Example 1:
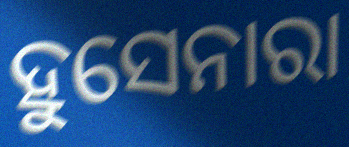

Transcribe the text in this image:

ହୁସେନାରା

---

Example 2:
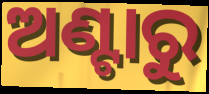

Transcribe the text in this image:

ଅଣ୍ଟାରୁ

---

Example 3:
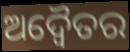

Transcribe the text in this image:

ଅଦ୍ଵୈତର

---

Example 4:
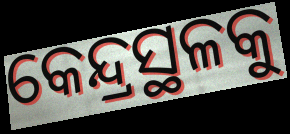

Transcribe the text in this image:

କେନ୍ଦ୍ରସ୍ଥଳକୁ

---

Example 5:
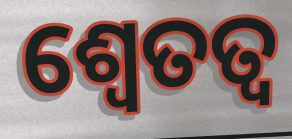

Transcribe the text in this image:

ଶ୍ୱେତତ୍ଵ